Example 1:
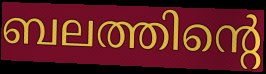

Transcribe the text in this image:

ബലത്തിന്റെ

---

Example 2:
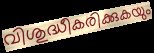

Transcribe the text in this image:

വിശുദ്ധീകരിക്കുകയും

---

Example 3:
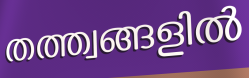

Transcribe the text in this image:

തത്ത്വങ്ങളിൽ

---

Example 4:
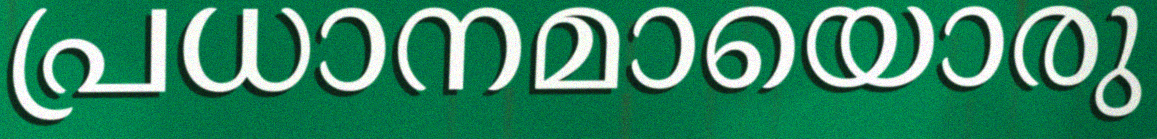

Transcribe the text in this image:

പ്രധാനമായൊരു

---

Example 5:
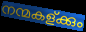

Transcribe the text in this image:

നന്മകള്ക്കും